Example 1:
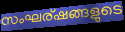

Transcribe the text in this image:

സംഘര്ഷങ്ങളുടെ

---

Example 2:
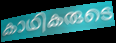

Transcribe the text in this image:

കാഥികരുടെ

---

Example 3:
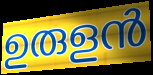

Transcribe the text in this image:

ഉരുളൻ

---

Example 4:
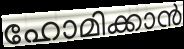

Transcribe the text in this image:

ഹോമിക്കാൻ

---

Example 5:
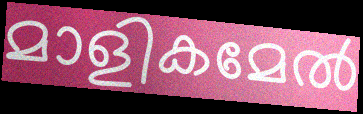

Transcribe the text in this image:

മാളികമേൽ